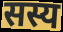
सस्य